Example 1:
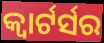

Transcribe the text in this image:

କ୍ବାର୍ଟର୍ସର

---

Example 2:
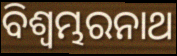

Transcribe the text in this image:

ବିଶ୍ୱମ୍ଭରନାଥ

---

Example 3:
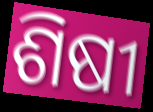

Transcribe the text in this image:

ଶିଷୀ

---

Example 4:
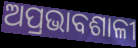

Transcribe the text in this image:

ଅପ୍ରଭାବଶାଳୀ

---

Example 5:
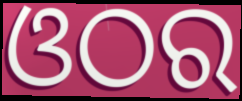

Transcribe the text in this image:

ଓଠର